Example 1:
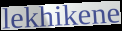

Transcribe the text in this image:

lekhikene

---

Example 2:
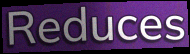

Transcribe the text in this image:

Reduces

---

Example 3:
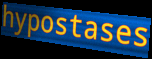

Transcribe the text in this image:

hypostases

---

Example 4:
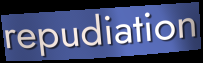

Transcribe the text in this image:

repudiation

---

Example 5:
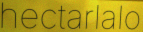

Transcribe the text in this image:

hectarlalo